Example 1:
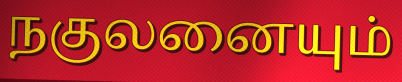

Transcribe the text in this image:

நகுலனையும்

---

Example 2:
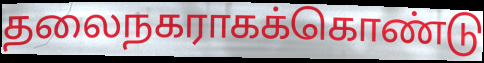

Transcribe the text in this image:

தலைநகராகக்கொண்டு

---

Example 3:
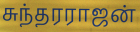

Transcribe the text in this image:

சுந்தரராஜன்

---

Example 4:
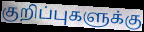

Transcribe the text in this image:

குறிப்புகளுக்கு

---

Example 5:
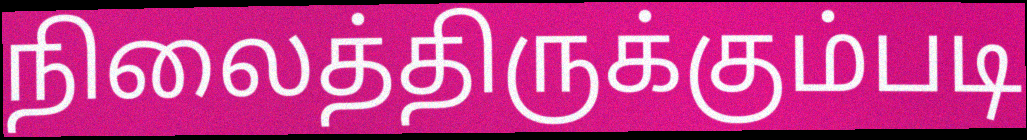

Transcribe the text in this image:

நிலைத்திருக்கும்படி